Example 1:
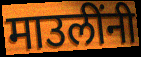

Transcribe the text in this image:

माउलींनी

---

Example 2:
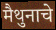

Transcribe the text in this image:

मैथुनाचे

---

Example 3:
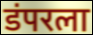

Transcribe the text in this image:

डंपरला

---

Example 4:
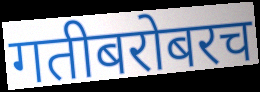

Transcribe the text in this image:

गतीबरोबरच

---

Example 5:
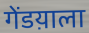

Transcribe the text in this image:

गेंडय़ाला